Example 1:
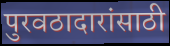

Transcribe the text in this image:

पुरवठादारांसाठी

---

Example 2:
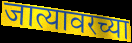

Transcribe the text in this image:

जात्यावरच्या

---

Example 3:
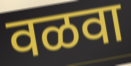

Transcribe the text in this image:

वळवा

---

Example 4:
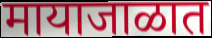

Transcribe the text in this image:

मायाजाळात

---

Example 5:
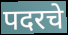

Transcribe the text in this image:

पदरचे